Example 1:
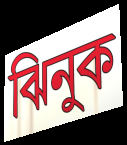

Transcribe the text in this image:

ঝিনুক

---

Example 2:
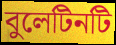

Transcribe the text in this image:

বুলেটিনটি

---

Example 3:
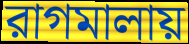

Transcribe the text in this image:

রাগমালায়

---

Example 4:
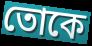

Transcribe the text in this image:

তোকে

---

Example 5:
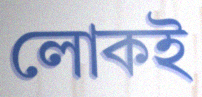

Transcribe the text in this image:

লোকই